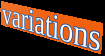
variations